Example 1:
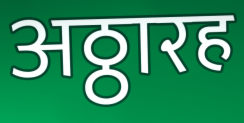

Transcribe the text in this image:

अठ्ठारह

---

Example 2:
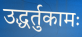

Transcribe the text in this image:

उद्धर्तुकामः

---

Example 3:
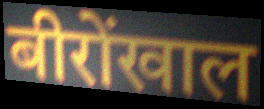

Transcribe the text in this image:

बीरोंखाल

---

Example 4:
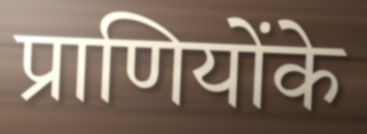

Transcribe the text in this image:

प्राणियोंके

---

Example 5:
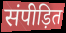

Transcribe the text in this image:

संपीड़ित